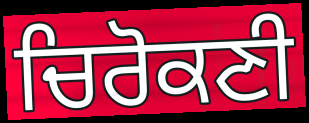
ਚਿਰੋਕਣੀ